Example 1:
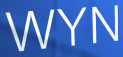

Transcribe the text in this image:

WYN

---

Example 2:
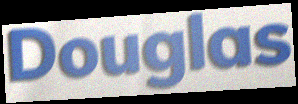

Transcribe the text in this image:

Douglas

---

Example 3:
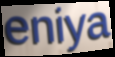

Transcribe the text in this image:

eniya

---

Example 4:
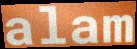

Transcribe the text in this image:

alam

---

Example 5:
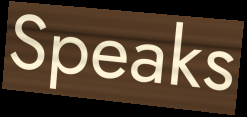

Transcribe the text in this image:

Speaks